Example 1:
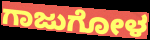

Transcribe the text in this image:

ಗಾಜುಗೋಳ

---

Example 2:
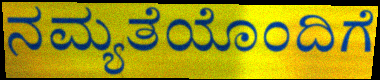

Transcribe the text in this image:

ನಮ್ಯತೆಯೊಂದಿಗೆ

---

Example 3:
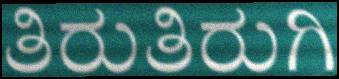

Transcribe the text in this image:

ತಿರುತಿರುಗಿ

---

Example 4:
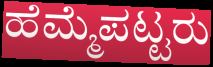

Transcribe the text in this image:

ಹೆಮ್ಮೆಪಟ್ಟರು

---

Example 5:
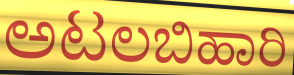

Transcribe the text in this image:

ಅಟಲಬಿಹಾರಿ